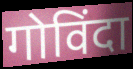
गोविंदा